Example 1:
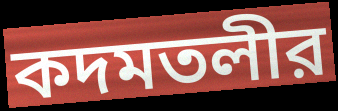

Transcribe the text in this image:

কদমতলীর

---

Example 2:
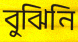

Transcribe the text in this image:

বুঝিনি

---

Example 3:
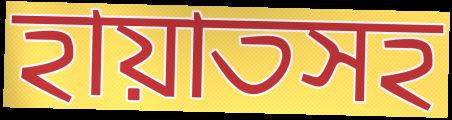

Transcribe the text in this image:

হায়াতসহ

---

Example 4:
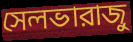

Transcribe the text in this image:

সেলভারাজু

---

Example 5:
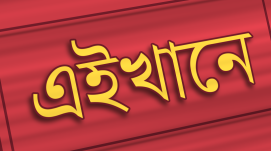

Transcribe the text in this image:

এইখানে